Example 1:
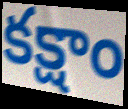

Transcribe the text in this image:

కక్షాం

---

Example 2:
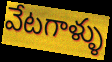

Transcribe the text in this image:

వేటగాళ్ళు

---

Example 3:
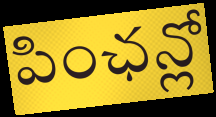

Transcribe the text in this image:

పింఛన్లో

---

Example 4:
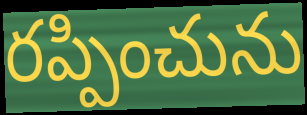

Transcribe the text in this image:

రప్పించును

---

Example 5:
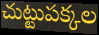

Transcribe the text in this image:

చుట్టుపక్కల